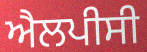
ਐਲਪੀਸੀ